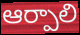
ఆర్పాలి